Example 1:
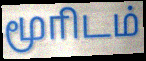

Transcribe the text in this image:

மூரிடம்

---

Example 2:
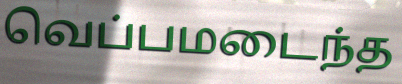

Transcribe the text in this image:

வெப்பமடைந்த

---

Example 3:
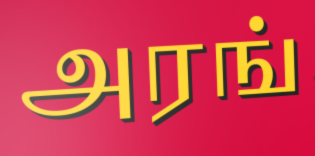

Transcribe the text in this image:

அரங்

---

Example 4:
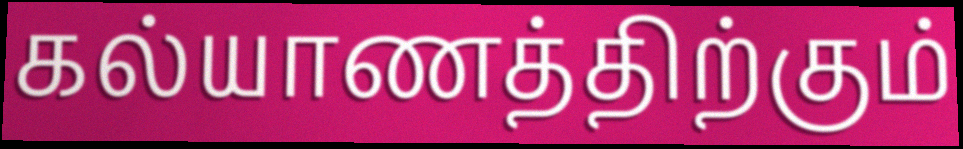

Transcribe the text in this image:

கல்யாணத்திற்கும்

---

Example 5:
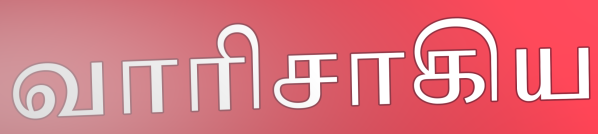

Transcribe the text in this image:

வாரிசாகிய